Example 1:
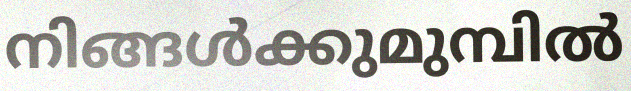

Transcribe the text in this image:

നിങ്ങൾക്കുമുമ്പിൽ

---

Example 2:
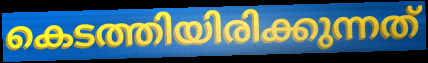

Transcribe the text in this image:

കെടത്തിയിരിക്കുന്നത്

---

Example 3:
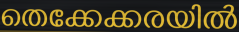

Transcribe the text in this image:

തെക്കേക്കരയിൽ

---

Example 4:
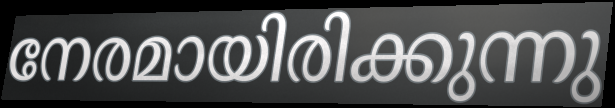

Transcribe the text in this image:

നേരമായിരിക്കുന്നു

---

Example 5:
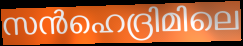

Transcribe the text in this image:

സൻഹെദ്രിമിലെ